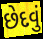
છેદવું